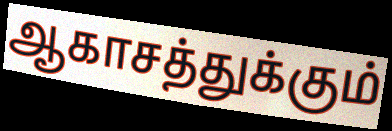
ஆகாசத்துக்கும்